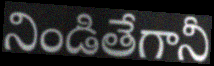
నిండితేగానీ